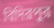
বিদিরপুর